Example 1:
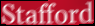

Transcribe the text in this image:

Stafford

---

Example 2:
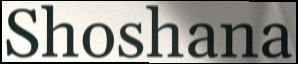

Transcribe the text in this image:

Shoshana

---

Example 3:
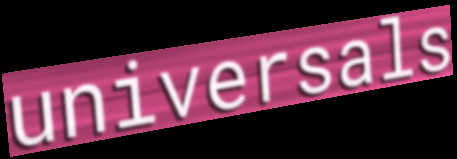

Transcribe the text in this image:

universals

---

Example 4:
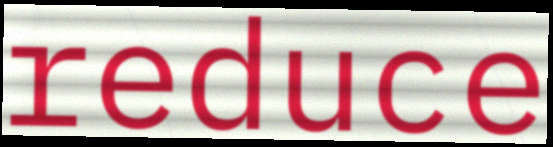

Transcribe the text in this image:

reduce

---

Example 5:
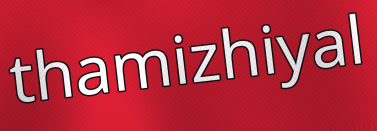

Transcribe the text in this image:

thamizhiyal